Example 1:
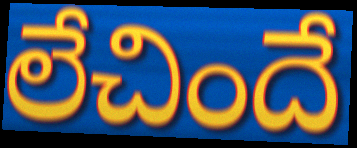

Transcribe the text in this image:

లేచిందే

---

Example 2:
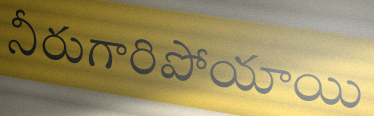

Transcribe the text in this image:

నీరుగారిపోయాయి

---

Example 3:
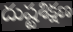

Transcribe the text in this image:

దుష్టశిక్షణ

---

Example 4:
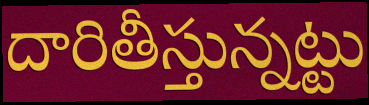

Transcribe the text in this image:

దారితీస్తున్నట్టు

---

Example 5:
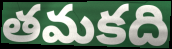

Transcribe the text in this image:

తమకది